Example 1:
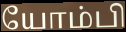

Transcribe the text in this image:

யோம்பி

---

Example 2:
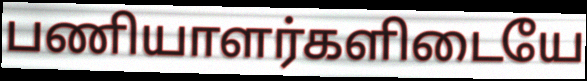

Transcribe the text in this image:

பணியாளர்களிடையே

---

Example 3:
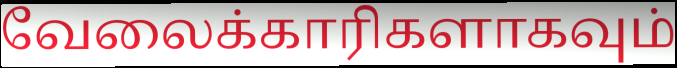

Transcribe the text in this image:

வேலைக்காரிகளாகவும்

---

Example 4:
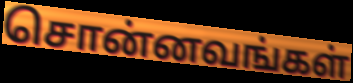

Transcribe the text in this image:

சொன்னவங்கள்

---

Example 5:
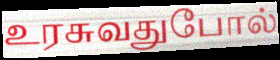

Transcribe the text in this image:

உரசுவதுபோல்